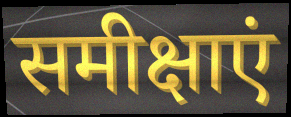
समीक्षाएं